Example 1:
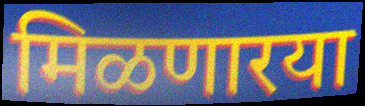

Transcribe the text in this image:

मिळणारया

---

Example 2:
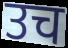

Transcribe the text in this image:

उच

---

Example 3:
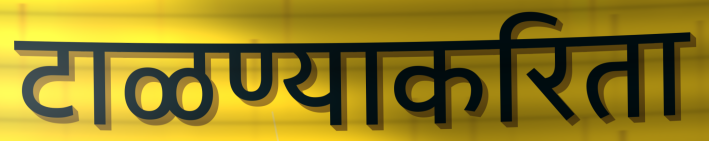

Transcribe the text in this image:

टाळण्याकरिता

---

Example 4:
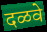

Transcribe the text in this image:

दळवे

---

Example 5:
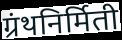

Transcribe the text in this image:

ग्रंथनिर्मिती